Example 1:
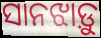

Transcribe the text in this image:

ସାନଝାଡ଼ୁ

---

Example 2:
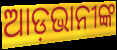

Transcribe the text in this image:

ଆଡ଼ଭାନୀଙ୍କ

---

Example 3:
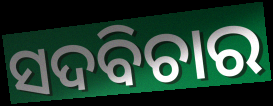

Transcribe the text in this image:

ସଦବିଚାର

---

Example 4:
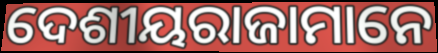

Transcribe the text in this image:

ଦେଶୀୟରାଜାମାନେ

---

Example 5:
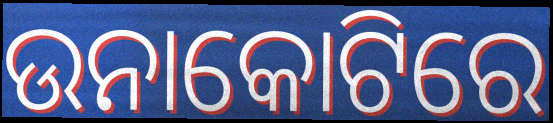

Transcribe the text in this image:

ଉନାକୋଟିରେ